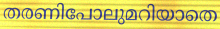
തരണിപോലുമറിയാതെ